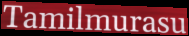
Tamilmurasu